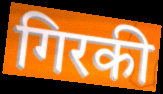
गिरकी